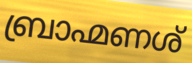
ബ്രാഹ്മണശ്